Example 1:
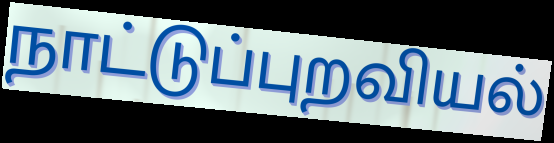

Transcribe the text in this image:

நாட்டுப்புறவியல்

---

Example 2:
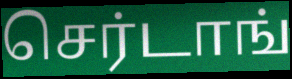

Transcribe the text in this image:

செர்டாங்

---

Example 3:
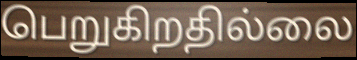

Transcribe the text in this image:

பெறுகிறதில்லை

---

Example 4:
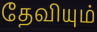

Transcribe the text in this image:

தேவியும்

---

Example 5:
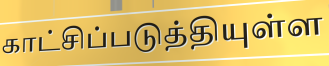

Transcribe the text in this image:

காட்சிப்படுத்தியுள்ள